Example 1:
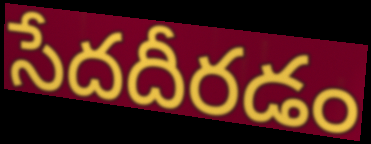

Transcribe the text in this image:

సేదదీరడం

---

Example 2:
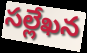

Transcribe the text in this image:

సల్లేఖన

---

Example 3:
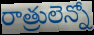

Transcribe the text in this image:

రాత్రులెన్నో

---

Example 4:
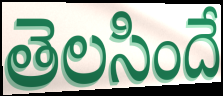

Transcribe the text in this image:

తెలసిందే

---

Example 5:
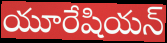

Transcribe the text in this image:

యూరేషియన్